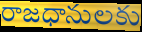
రాజధానులకు